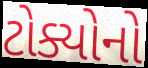
ટોક્યોનો